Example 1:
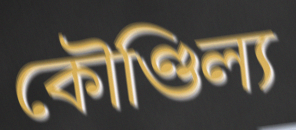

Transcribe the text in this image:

কৌণ্ডিল্য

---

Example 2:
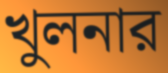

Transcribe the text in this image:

খুলনার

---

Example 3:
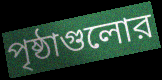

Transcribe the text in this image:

পৃষ্ঠাগুলোর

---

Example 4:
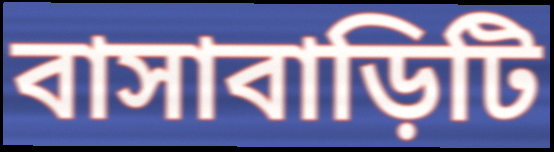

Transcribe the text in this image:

বাসাবাড়িটি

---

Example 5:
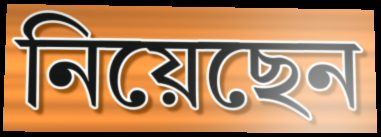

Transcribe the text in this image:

নিয়েছেন